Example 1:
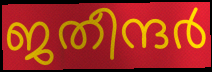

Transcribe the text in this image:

ജതീന്ദർ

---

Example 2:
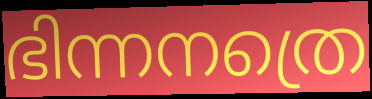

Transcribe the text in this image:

ഭിന്നനത്രെ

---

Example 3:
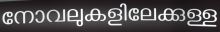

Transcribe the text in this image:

നോവലുകളിലേക്കുള്ള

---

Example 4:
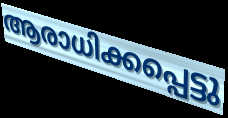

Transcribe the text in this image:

ആരാധിക്കപ്പെട്ടു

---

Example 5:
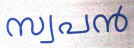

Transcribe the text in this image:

സ്വപൻ